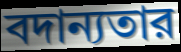
বদান্যতার